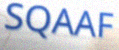
SQAAF